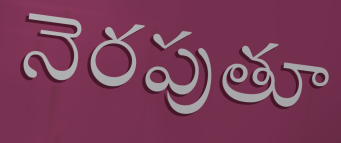
నెరపుతూ